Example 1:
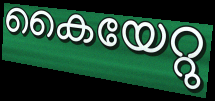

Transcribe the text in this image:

കൈയേറ്റു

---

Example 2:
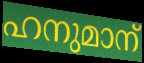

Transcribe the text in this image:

ഹനുമാന്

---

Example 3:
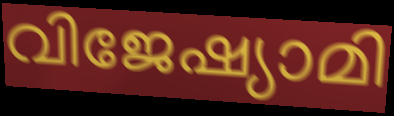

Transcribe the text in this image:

വിജേഷ്യാമി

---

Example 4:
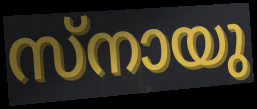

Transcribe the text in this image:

സ്നായു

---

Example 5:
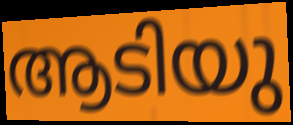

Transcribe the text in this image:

ആടിയു